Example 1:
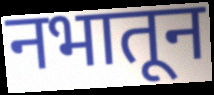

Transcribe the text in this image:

नभातून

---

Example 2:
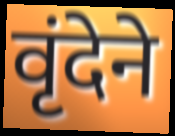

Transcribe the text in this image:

वृंदेने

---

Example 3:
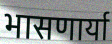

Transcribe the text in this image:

भासणार्या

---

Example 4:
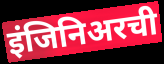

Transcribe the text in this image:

इंजिनिअरची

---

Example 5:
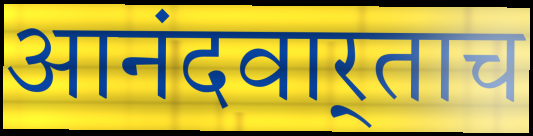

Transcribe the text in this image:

आनंदवार्ताच